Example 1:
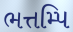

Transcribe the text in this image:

ભત્તમ્પિ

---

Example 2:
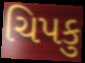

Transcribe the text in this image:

ચિપકુ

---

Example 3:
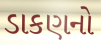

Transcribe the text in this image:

ડાકણનો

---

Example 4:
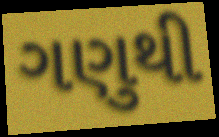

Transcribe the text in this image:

ગણુથી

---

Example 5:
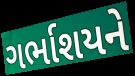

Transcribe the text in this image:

ગર્ભાશયને